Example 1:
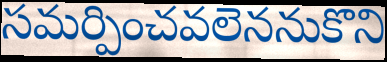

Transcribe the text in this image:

సమర్పించవలెననుకొని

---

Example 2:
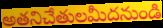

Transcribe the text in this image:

అతనిచేతులమీదనుండి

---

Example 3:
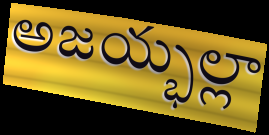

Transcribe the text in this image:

అజయ్భల్లా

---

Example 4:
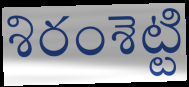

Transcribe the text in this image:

శిరంశెట్టి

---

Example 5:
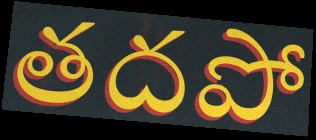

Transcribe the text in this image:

తదపో